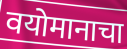
वयोमानाचा